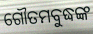
ଗୌତମବୁଦ୍ଧଙ୍କ